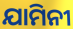
ଯାମିନୀ